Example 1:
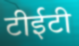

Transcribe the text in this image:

टीईटी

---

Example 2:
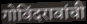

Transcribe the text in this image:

गोविंदरावांची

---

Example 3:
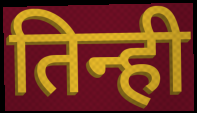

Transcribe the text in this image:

तिन्ही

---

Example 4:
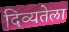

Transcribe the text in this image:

दिव्यतेला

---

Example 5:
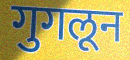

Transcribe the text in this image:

गुगलून